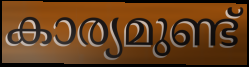
കാര്യമുണ്ട്